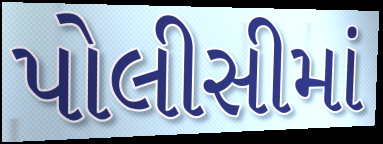
પોલીસીમાં